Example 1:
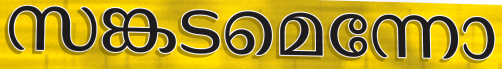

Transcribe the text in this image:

സങ്കടമെന്നോ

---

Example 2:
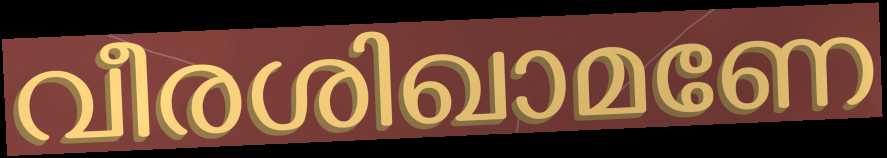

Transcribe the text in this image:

വീരശിഖാമണേ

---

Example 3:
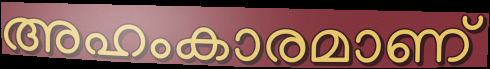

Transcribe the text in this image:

അഹംകാരമാണ്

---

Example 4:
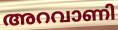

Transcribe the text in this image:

അറവാണി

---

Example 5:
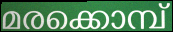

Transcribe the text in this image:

മരക്കൊമ്പ്